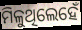
ମିଳୁଥିଲେହେଁ